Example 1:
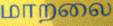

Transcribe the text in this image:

மாறலை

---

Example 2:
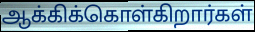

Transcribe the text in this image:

ஆக்கிக்கொள்கிறார்கள்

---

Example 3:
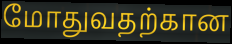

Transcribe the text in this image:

மோதுவதற்கான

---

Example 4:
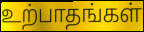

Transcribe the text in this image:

உற்பாதங்கள்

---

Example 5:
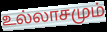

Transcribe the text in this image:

உல்லாசமும்